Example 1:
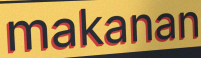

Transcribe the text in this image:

makanan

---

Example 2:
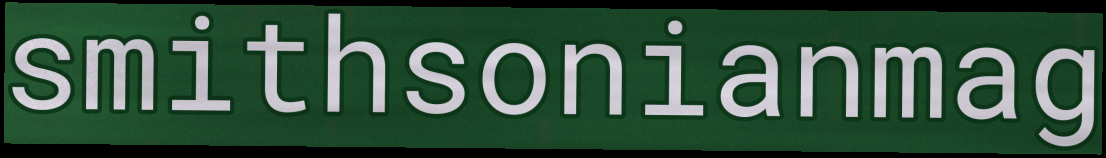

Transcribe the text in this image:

smithsonianmag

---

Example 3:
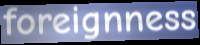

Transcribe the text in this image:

foreignness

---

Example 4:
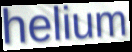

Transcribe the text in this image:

helium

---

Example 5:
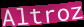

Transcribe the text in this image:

Altroz